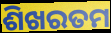
ଶିଖରତମ